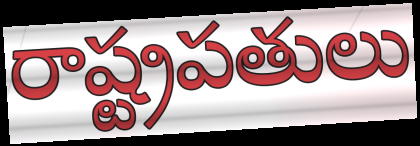
రాష్ట్రపతులు